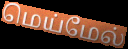
மெய்மேல்